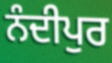
ਨੰਦੀਪੁਰ